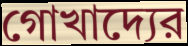
গোখাদ্যের